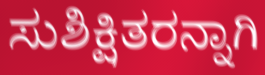
ಸುಶಿಕ್ಷಿತರನ್ನಾಗಿ